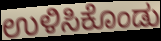
ಉಳಿಸಿಕೊಂಡು